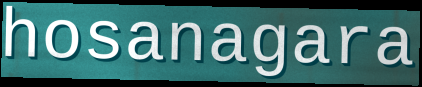
hosanagara